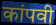
कांपवी